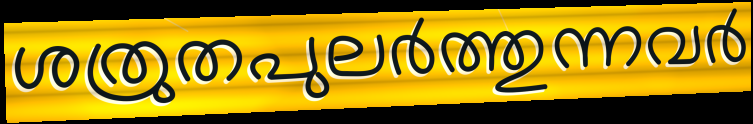
ശത്രുതപുലർത്തുന്നവർ